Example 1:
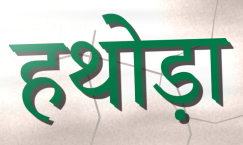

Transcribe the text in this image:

हथोड़ा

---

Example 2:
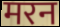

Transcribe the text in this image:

मरन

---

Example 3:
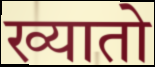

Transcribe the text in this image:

ख्यातो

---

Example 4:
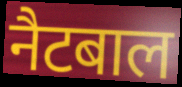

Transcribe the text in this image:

नैटबाल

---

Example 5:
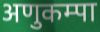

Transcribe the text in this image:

अणुकम्पा